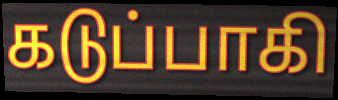
கடுப்பாகி